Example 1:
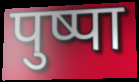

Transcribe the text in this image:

पुष्पा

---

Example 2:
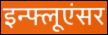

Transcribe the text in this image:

इन्फ्लूएंसर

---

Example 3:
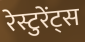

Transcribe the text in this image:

रेस्टुरेंट्स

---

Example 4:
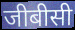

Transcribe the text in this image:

जीबीसी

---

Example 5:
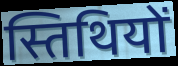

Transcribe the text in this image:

स्तिथियों